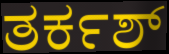
ತರ್ಕಶ್